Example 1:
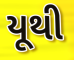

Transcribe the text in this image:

યૂથી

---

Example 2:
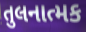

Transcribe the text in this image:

તુલનાત્મક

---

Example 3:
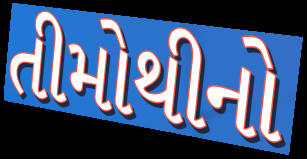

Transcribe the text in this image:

તીમોથીનો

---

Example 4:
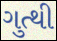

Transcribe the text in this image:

ગુત્થી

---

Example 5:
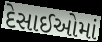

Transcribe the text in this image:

દેસાઈઓમાં